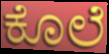
ಕೊಲೆ